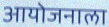
आयोजनाला